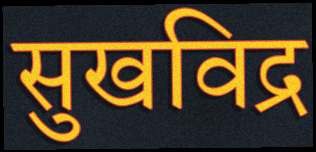
सुखविद्र